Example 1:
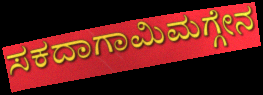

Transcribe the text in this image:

ಸಕದಾಗಾಮಿಮಗ್ಗೇನ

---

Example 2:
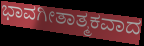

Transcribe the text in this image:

ಭಾವಗೀತಾತ್ಮಕವಾದ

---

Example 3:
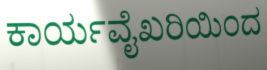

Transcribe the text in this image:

ಕಾರ್ಯವೈಖರಿಯಿಂದ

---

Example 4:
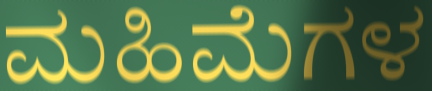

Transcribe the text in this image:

ಮಹಿಮೆಗಳ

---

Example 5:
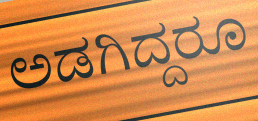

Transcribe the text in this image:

ಅಡಗಿದ್ದರೂ